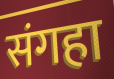
संगहा